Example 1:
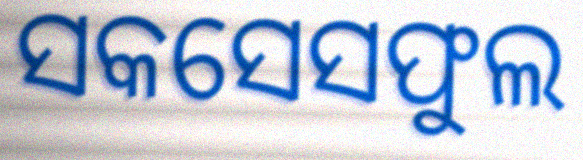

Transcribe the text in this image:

ସକସେସଫୁଲ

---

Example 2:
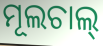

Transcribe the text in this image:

ମୂଲଚାଲ୍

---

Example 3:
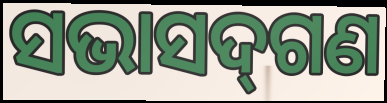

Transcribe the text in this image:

ସଭାସଦ୍‍ଗଣ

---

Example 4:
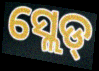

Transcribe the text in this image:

ସ୍ଲେଡ୍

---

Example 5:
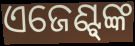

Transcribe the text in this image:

ଏଜେଣ୍ଟ୍‍ଙ୍କ